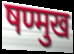
षण्मुख